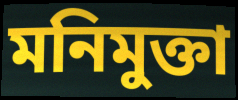
মনিমুক্তা